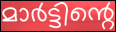
മാർട്ടിന്റെ